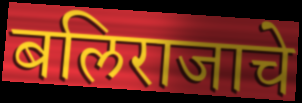
बलिराजाचे